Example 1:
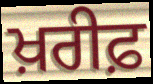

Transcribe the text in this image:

ਖ਼ਰੀਫ਼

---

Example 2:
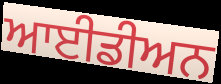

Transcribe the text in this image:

ਆਈਡੀਅਨ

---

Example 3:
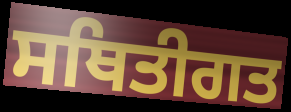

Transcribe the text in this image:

ਸਥਿਤੀਗਤ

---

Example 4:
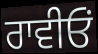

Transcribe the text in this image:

ਰਾਵੀਓਂ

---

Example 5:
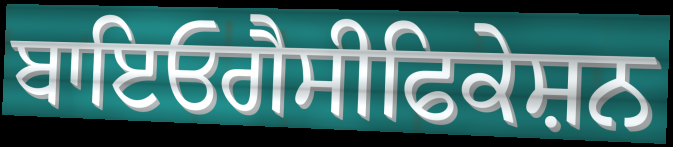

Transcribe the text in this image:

ਬਾਇਓਗੈਸੀਫਿਕੇਸ਼ਨ